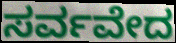
ಸರ್ವವೇದ